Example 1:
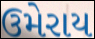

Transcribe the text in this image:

ઉમેરાય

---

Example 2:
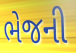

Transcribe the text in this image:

ભેજની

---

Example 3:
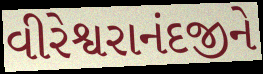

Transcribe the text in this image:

વીરેશ્વરાનંદજીને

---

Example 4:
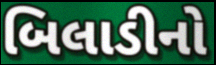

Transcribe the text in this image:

બિલાડીનો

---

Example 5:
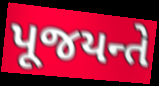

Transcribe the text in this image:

પૂજયન્તે